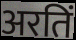
अरतिं